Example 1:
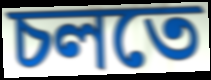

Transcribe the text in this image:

চলতে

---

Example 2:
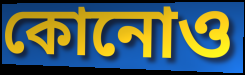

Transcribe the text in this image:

কোনোও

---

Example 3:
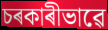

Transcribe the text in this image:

চৰকাৰীভাৱে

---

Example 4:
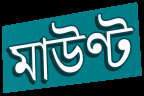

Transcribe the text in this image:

মাউণ্ট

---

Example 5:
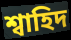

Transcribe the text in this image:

শ্বাহিদ